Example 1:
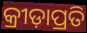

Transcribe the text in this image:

କ୍ରୀଡ଼ାପ୍ରତି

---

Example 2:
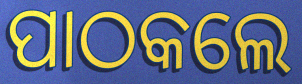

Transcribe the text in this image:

ପାଠକଲେ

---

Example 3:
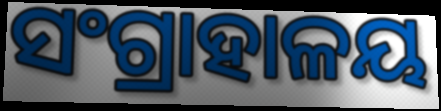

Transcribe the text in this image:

ସଂଗ୍ରାହାଳୟ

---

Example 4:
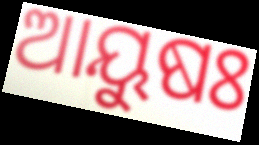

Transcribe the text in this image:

ଆୟୁଷଃ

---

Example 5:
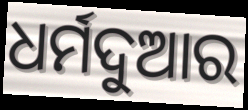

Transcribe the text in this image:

ଧର୍ମଦୁଆର